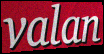
valan